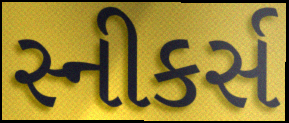
સ્નીકર્સ